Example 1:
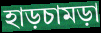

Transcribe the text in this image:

হাড়চামড়া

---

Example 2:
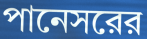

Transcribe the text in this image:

পানেসরের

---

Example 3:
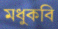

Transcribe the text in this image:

মধুকবি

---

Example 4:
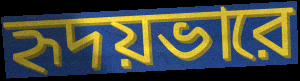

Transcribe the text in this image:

হৃদয়ভারে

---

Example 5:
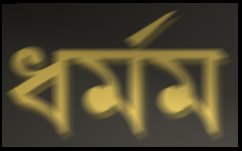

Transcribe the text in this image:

ধর্মম